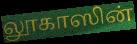
லூகாஸின்